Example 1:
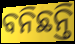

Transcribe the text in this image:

ବନିଛନ୍ତି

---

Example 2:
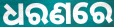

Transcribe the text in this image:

ଧରଣରେ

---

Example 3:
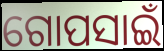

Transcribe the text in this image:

ଗୋପସାଇଁ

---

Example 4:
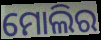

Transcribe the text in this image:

ମୋଲିର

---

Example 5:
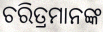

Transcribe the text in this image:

ଚରିତ୍ରମାନଙ୍କ